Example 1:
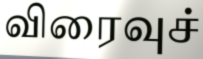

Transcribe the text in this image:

விரைவுச்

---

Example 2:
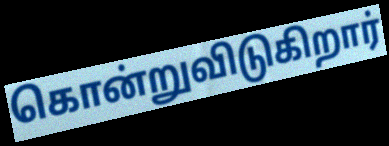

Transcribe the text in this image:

கொன்றுவிடுகிறார்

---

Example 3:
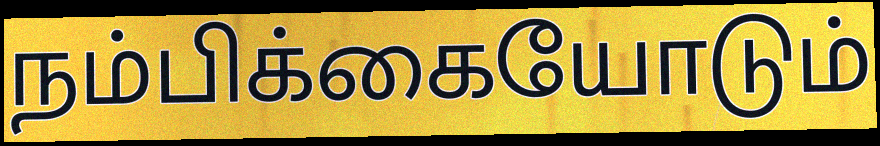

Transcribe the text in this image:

நம்பிக்கையோடும்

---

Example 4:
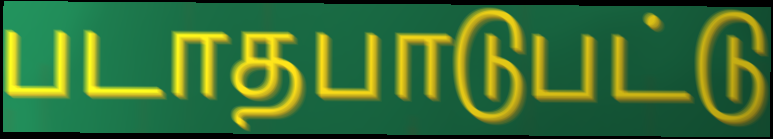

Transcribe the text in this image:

படாதபாடுபட்டு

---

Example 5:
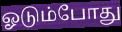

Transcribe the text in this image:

ஓடும்போது